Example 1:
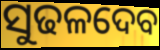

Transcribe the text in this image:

ସୁଢଳଦେବ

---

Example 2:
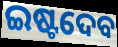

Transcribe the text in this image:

ଇଷ୍ଟଦେବ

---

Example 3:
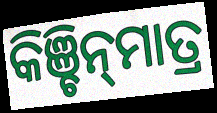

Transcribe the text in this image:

କିଞ୍ଚିନ୍‍ମାତ୍ର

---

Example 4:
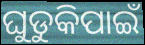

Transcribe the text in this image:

ଘୁଡୁକିପାଇଁ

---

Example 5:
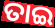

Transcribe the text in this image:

ତାଇ